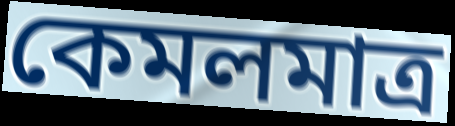
কেমলমাত্র